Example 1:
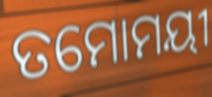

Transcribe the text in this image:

ତମୋମୟୀ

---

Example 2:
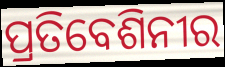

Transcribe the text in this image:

ପ୍ରତିବେଶିନୀର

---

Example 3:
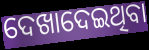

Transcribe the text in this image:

ଦେଖାଦେଇଥିବା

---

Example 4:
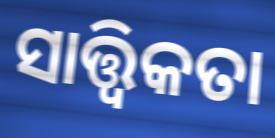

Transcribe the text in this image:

ସାତ୍ତ୍ବିକତା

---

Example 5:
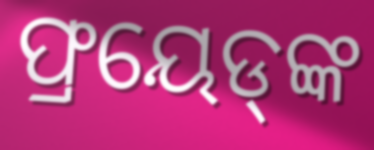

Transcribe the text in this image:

ଫ୍ରୟେଡ୍‍ଙ୍କ